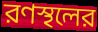
রণস্থলের